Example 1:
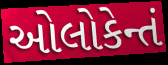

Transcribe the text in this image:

ઓલોકેન્તં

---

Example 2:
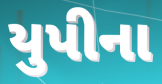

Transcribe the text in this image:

યુપીના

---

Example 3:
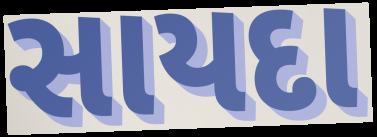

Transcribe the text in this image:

સાયદા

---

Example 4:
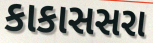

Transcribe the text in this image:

કાકાસસરા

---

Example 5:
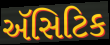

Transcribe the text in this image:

ઍસિટિક